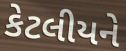
કેટલીયને